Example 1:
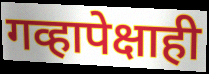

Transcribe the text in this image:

गव्हापेक्षाही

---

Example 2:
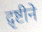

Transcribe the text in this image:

द़ृष्टीने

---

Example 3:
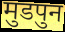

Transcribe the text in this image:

मुडपुन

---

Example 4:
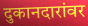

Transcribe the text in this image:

दुकानदारांवर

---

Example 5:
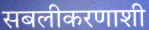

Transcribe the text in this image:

सबलीकरणाशी